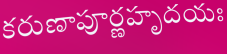
కరుణాపూర్ణహృదయః